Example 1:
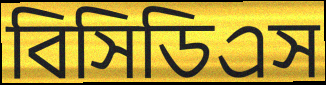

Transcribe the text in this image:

বিসিডিএস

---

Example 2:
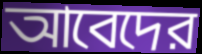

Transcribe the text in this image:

আবেদের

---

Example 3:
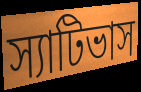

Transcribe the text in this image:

স্যাটিভাস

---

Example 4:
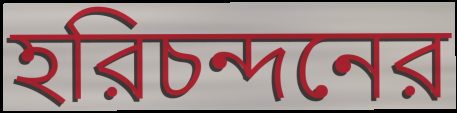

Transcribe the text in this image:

হরিচন্দনের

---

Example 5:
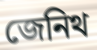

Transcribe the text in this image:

জেনিথ